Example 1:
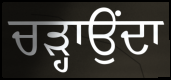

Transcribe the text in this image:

ਚੜ੍ਹਾਉਂਦਾ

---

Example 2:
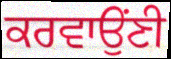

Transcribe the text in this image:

ਕਰਵਾਉਂਣੀ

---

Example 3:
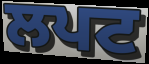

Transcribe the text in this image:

ਲਪਟ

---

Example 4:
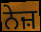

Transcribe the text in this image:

ਨੇਜ਼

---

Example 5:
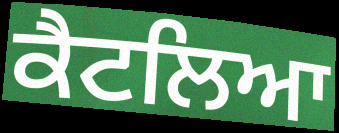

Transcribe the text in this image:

ਕੈਟਲਿਆ